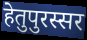
हेतुपुरस्सर